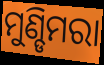
ମୁଣ୍ଡିମରା